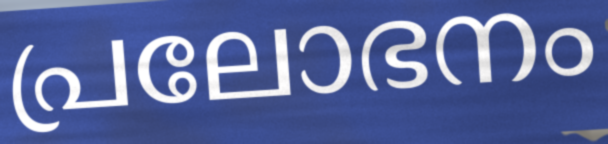
പ്രലോഭനം